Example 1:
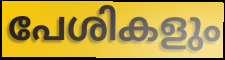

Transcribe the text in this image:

പേശികളും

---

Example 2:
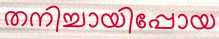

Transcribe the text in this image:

തനിച്ചായിപ്പോയ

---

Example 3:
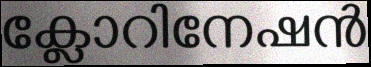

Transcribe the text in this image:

ക്ലോറിനേഷൻ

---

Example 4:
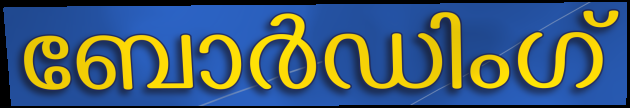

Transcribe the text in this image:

ബോർഡിംഗ്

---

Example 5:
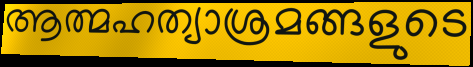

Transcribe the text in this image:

ആത്മഹത്യാശ്രമങ്ങളുടെ